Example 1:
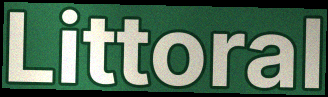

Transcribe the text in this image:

Littoral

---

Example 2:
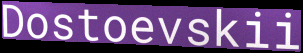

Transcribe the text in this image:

Dostoevskii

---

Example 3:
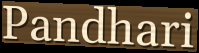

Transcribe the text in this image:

Pandhari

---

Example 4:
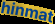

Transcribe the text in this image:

hinmat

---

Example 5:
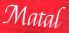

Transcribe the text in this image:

Matal